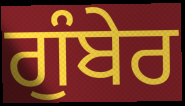
ਗੁੰਬੇਰ